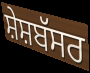
ਸ਼ੇਸ਼ਬੱਸਰ